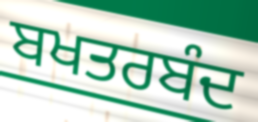
ਬਖਤਰਬੰਦ